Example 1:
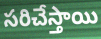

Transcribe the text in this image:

సరిచేస్తాయి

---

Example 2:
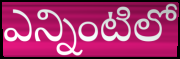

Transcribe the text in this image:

ఎన్నింటిలో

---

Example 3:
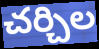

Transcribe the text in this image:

చర్చిల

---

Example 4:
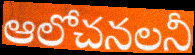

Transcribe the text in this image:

ఆలోచనలనీ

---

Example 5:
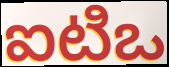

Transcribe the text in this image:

ఐటిఒ